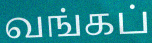
வங்கப்